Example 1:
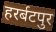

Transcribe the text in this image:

हरर्बटपुर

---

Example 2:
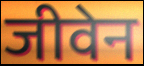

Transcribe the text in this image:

जीवेन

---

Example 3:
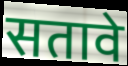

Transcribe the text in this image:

सतावे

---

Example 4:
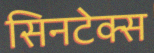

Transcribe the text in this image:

सिनटेक्स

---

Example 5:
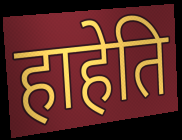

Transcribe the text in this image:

हाहेति